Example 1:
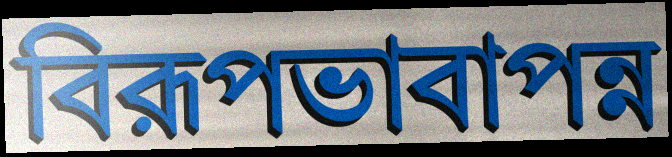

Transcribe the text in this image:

বিরূপভাবাপন্ন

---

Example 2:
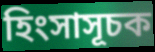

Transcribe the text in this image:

হিংসাসূচক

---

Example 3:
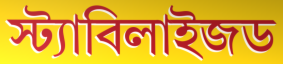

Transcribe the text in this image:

স্ট্যাবিলাইজড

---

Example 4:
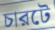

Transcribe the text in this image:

চারটে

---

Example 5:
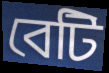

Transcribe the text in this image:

বেটি